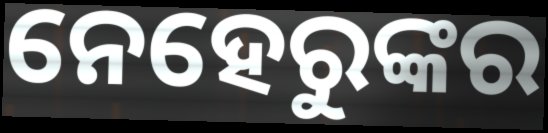
ନେହେରୁଙ୍କର